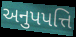
અનુપપત્તિ